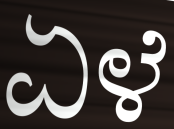
ಏಳೆ